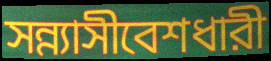
সন্ন্যাসীবেশধারী